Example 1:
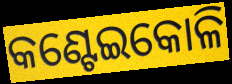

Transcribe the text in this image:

କଣ୍ଟେଇକୋଳି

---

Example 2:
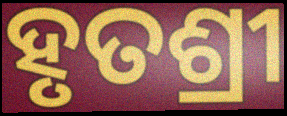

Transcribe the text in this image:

ହୃତଶ୍ରୀ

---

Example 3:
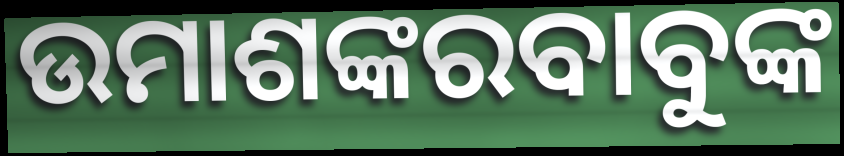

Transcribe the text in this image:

ଉମାଶଙ୍କରବାବୁଙ୍କ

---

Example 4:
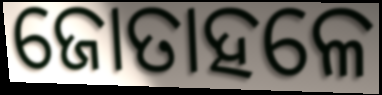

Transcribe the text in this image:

ଜୋତାହଳେ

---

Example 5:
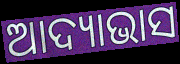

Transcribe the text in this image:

ଆଦ୍ୟାଭାସ